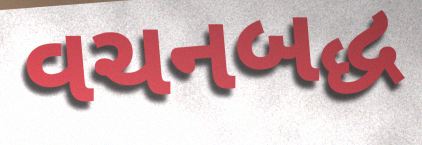
વચનબદ્ધ